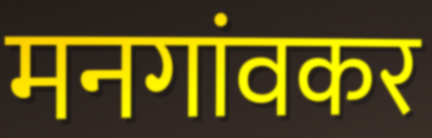
मनगांवकर